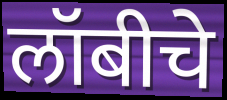
लॉबीचे